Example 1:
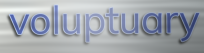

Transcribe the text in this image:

voluptuary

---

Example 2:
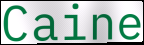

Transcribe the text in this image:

Caine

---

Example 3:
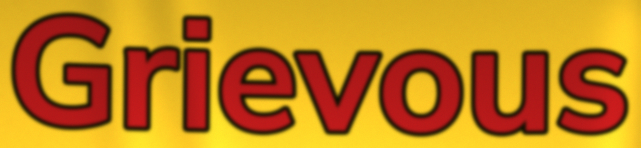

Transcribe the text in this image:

Grievous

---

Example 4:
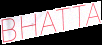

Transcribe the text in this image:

BHATTA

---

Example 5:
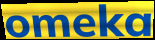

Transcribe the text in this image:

omeka